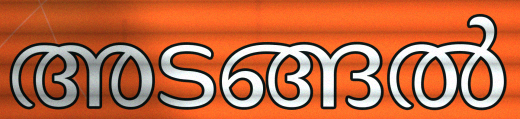
അടങ്ങൽ